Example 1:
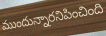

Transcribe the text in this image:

ముందున్నారనిపించింది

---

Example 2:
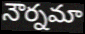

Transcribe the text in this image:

నౌర్నమా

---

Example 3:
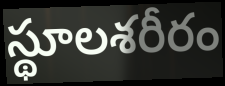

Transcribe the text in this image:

స్థూలశరీరం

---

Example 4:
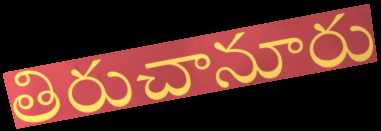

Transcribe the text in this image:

తిరుచానూరు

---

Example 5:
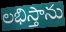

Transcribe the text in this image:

లభిస్తాను